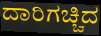
ದಾರಿಗಚ್ಚಿದ